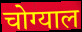
चोग्याल